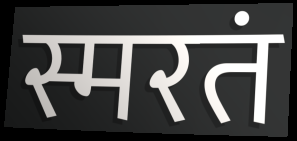
स्मरतं